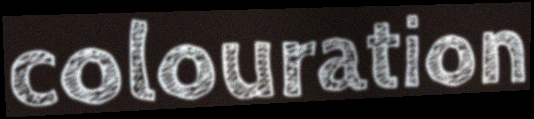
colouration